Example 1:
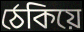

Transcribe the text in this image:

ঠেকিয়ে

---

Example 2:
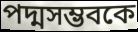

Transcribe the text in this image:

পদ্মসম্ভবকে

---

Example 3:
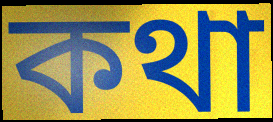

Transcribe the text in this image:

কথা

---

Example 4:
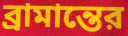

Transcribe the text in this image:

ব্রামান্তের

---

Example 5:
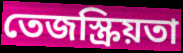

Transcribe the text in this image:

তেজস্ক্রিয়তা